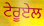
ਟੇਰੂਏਲ